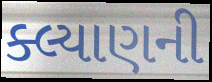
ક્લ્યાણની